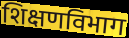
शिक्षणविभाग